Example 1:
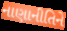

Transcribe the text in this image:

નાણાનીતિને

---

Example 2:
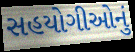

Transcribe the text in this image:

સહયોગીઓનું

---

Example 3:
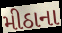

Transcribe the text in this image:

મીઠાના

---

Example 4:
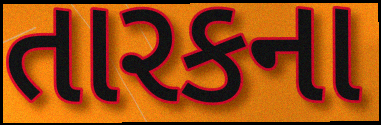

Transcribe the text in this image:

તારકના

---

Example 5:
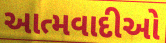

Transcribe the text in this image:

આત્મવાદીઓ